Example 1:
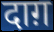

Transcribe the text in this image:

दाग़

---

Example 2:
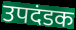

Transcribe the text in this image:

उपदंडक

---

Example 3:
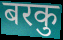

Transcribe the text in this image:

बरकु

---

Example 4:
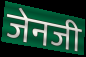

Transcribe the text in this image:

जेनजी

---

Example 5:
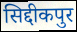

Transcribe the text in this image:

सिद्दीकपुर